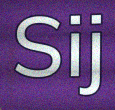
Sij